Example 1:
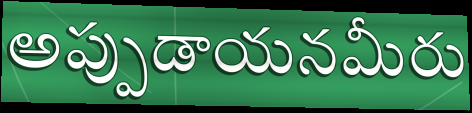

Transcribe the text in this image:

అప్పుడాయనమీరు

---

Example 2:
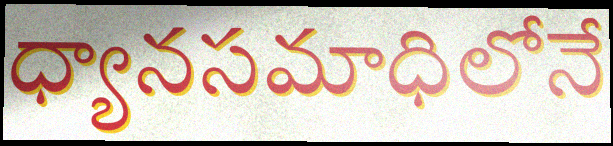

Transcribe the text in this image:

ధ్యానసమాధిలోనే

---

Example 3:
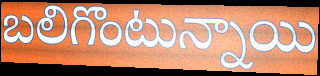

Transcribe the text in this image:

బలిగొంటున్నాయి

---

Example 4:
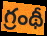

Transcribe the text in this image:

గ్రంథీ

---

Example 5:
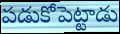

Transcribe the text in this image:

పడుకోపెట్టాడు